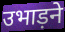
उभाड़ने